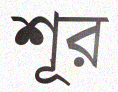
শূর